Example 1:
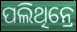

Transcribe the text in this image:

ପଲିଥିନ୍ରେ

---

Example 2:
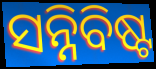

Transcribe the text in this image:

ସନ୍ନିବିଷ୍ଟ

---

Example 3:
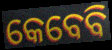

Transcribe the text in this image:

କେବେବି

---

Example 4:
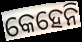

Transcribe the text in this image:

କେହେନି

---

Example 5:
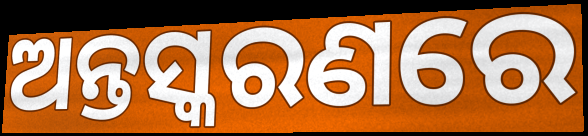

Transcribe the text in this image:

ଅନ୍ତସ୍କରଣରେ